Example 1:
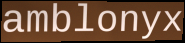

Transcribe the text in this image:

amblonyx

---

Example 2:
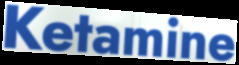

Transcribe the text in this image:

Ketamine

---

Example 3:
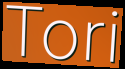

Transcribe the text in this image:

Tori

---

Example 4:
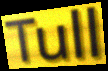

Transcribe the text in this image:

Tull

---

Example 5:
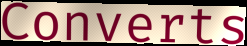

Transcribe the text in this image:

Converts